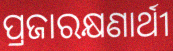
ପ୍ରଜାରକ୍ଷଣାର୍ଥୀ